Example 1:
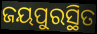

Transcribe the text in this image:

ଜୟପୁରସ୍ଥିତ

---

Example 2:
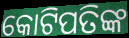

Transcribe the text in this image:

କୋଟିପତିଙ୍କ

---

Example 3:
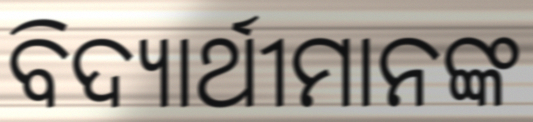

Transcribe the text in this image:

ବିଦ୍ୟାର୍ଥୀମାନଙ୍କ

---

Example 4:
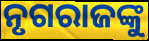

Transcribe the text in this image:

ନୃଗରାଜଙ୍କୁ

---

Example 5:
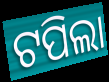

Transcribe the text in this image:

ଟପିଲା